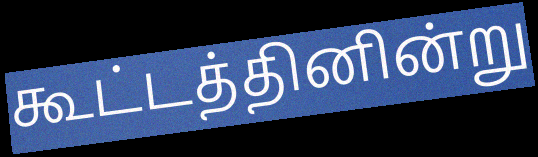
கூட்டத்தினின்று